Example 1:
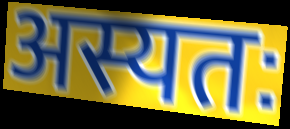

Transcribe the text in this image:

अस्यतः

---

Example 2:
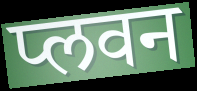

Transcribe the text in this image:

प्लवन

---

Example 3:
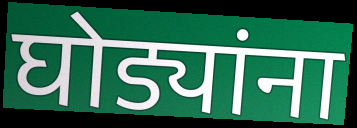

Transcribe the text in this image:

घोड्यांना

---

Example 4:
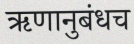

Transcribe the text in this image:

ऋणानुबंधच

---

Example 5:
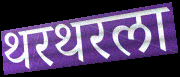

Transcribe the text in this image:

थरथरला